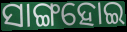
ସାଙ୍ଗହୋଇ